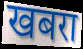
खबरा